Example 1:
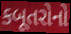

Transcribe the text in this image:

કબૂતરોનો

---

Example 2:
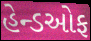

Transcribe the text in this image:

હેન્ડઓફ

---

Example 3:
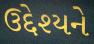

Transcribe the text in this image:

ઉદ્દેશ્યને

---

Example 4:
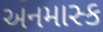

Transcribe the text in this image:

અનમાસ્ક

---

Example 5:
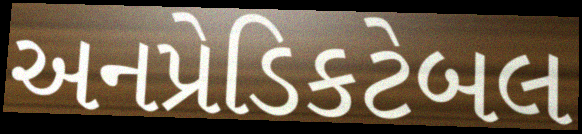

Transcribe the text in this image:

અનપ્રેડિકટેબલ